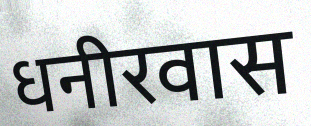
धनीरवास